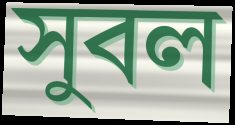
সুবল